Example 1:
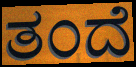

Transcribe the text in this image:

ತಂದೆ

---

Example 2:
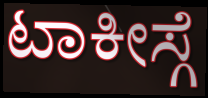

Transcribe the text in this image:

ಟಾಕೀಸ್ಗೆ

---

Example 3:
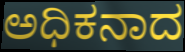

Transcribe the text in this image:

ಅಧಿಕನಾದ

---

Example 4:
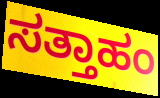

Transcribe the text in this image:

ಸತ್ತಾಹಂ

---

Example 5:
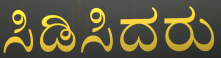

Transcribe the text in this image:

ಸಿಡಿಸಿದರು